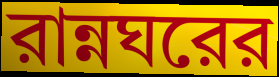
রান্নঘরের